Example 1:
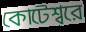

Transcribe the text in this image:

কোটেশ্বরে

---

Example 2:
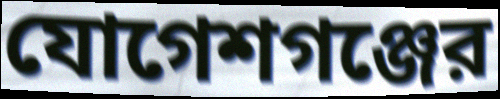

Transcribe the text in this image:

যোগেশগঞ্জের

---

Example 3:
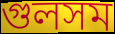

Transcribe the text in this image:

গুলসম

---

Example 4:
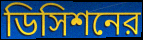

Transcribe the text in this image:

ডিসিশনের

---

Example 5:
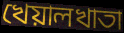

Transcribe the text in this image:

খেয়ালখাতা